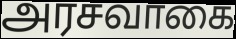
அரசவாகை